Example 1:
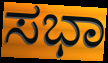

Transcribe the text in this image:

ಸಭಾ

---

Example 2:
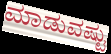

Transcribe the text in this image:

ಮಾಡುವಷ್ಟು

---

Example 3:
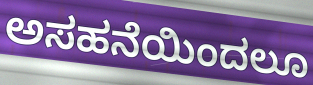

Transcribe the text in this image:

ಅಸಹನೆಯಿಂದಲೂ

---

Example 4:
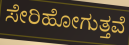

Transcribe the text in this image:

ಸೇರಿಹೋಗುತ್ತವೆ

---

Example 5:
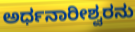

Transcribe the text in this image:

ಅರ್ಧನಾರೀಶ್ವರನು